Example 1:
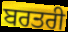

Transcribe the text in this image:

ਬਰਤਰੀ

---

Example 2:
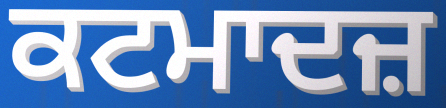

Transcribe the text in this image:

ਕਟਮਾਦਜ਼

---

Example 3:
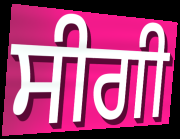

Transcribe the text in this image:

ਸੀਗੀ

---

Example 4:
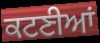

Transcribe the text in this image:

ਕਟਣੀਆਂ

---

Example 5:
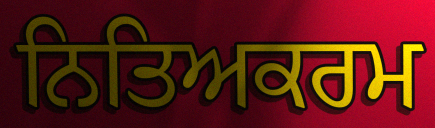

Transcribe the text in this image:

ਨਿਤਿਅਕਰਮ